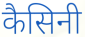
कैसिनी